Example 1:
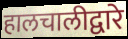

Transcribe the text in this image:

हालचालीद्वारे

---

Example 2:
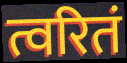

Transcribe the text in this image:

त्वरितं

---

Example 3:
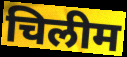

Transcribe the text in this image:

चिलीम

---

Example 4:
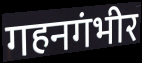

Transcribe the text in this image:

गहनगंभीर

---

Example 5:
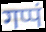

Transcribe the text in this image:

गप्पं